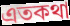
এতকথা